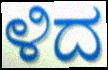
ಳಿದ